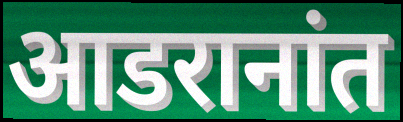
आडरानांत